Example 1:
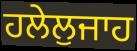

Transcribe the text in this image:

ਹਲੇਲੁਜਾਹ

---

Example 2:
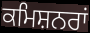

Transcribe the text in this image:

ਕਮਿਸ਼ਨਰਾਂ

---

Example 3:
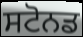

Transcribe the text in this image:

ਸਟੋਨਡ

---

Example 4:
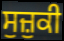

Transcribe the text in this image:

ਸੁਜ਼ੁਕੀ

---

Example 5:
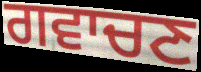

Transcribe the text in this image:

ਗਵਾਚਣ